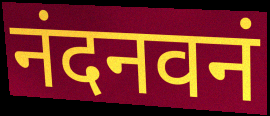
नंदनवनं